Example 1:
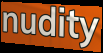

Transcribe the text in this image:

nudity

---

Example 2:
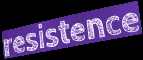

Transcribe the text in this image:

resistence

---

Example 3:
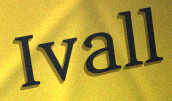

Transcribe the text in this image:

Ivall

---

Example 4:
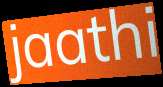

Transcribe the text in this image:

jaathi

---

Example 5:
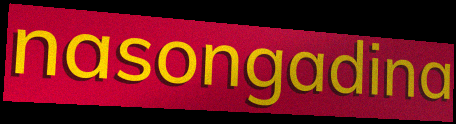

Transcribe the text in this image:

nasongadina